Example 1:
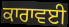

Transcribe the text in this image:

ਕਾਰਾਵਈ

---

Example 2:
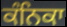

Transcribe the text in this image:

ਕੰਨਿਕਾ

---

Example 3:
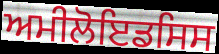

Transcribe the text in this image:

ਅਮੀਲੋਇਡਸਿਸ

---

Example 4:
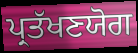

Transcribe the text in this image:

ਪ੍ਰਤੱਖਣਯੋਗ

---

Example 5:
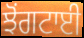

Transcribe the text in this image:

ਝੋਂਗਟਾਈ